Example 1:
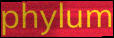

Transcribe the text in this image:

phylum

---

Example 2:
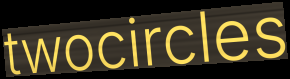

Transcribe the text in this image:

twocircles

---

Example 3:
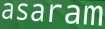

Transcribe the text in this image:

asaram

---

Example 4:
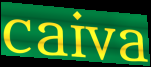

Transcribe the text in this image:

caiva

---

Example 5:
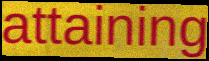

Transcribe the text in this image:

attaining